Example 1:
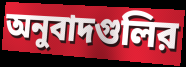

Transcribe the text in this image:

অনুবাদগুলির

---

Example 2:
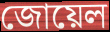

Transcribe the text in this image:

জোয়েল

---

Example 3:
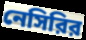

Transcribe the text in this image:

নেসিরির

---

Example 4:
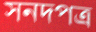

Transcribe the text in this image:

সনদপত্র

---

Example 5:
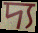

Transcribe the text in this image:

দ্য